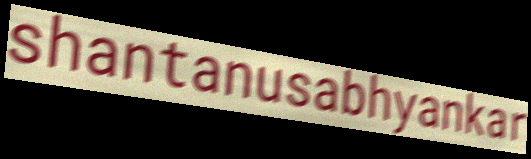
shantanusabhyankar